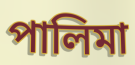
পালিমা